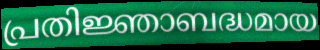
പ്രതിജ്ഞാബദ്ധമായ